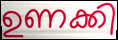
ഉണക്കി